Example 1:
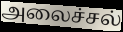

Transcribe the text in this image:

அலைச்சல்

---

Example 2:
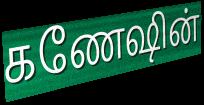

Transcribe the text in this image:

கணேஷின்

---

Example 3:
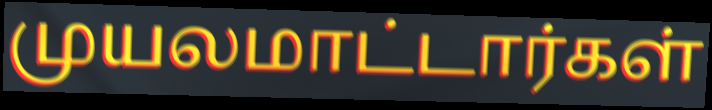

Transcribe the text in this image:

முயலமாட்டார்கள்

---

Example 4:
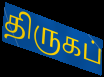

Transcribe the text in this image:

திருகப்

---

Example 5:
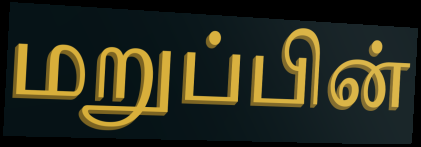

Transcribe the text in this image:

மறுப்பின்